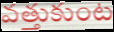
వత్తుకుంట